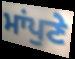
ਮਾਂਪੁਣੇ